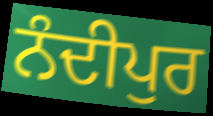
ਨੰਦੀਪੁਰ